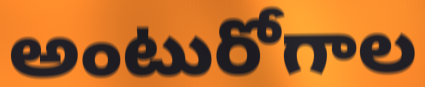
అంటురోగాల